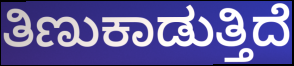
ತಿಣುಕಾಡುತ್ತಿದೆ